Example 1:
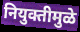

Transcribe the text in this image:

नियुक्तीमुळे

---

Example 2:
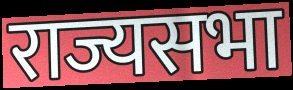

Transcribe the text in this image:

राज्यसभा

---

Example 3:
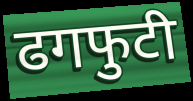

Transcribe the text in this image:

ढगफुटी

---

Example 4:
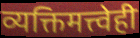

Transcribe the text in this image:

व्यक्तिमत्त्वेही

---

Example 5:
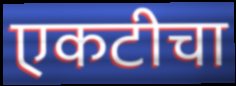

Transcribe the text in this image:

एकटीचा